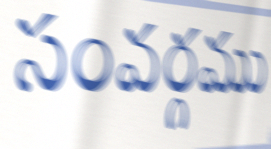
సంవర్గము